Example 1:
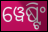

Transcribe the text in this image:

ୱେଷ୍ଟିଂ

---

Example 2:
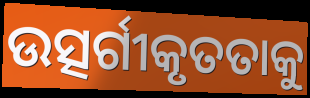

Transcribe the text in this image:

ଉତ୍ସର୍ଗୀକୃତତାକୁ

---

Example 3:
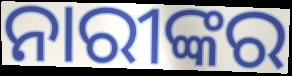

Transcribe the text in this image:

ନାରୀଙ୍କର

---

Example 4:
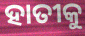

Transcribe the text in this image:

ହାତୀକୁ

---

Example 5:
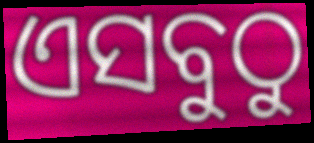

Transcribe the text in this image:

ଏସବୁଠୁ